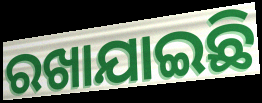
ରଖାଯାଇଛି